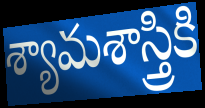
శ్యామశాస్త్రికి